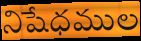
నిషేధముల